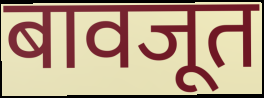
बावजूत